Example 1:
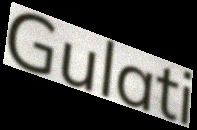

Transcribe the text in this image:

Gulati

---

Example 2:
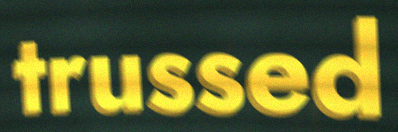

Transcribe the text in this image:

trussed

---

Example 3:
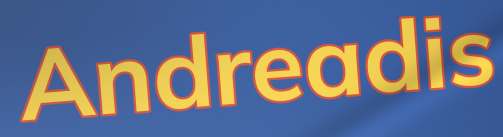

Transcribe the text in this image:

Andreadis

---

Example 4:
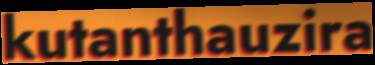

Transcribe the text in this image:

kutanthauzira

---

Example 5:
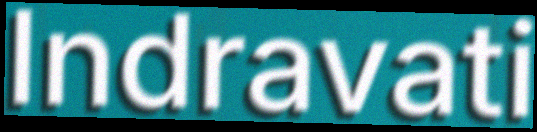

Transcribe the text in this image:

Indravati